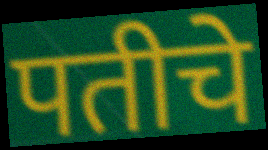
पतीचे